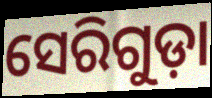
ସେରିଗୁଡ଼ା